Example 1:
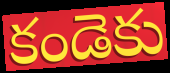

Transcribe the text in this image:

కండెకు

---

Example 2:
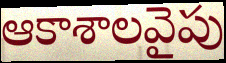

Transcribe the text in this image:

ఆకాశాలవైపు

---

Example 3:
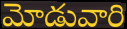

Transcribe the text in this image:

మోడువారి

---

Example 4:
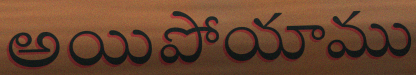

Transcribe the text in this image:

అయిపోయాము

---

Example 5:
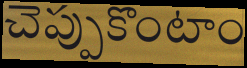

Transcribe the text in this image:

చెప్పుకొంటాం